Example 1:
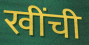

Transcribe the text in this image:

खींची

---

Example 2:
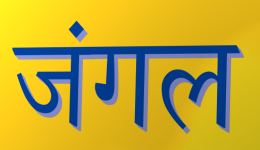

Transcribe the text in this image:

जंगल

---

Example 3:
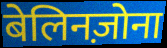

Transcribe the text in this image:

बेलिनज़ोना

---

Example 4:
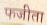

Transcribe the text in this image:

फजीता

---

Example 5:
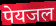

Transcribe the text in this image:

पेयजल